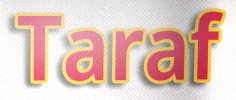
Taraf